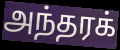
அந்தரக்